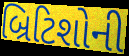
બ્રિટિશોની